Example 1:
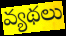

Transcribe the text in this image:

వ్యథలు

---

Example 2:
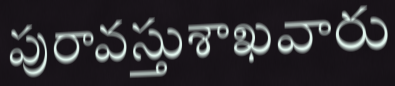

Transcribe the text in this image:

పురావస్తుశాఖవారు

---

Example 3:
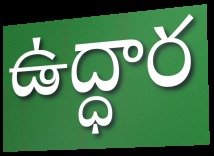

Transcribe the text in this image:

ఉద్ధార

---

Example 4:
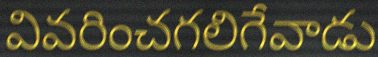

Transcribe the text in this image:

వివరించగలిగేవాడు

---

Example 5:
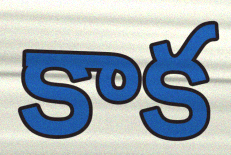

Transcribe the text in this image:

కాక